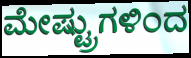
ಮೇಷ್ಟ್ರುಗಳಿಂದ